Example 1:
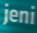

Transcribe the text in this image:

jeni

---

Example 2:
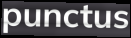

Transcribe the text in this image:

punctus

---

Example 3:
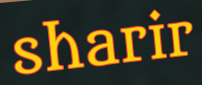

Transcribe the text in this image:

sharir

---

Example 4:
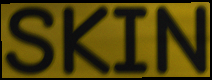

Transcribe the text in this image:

SKIN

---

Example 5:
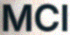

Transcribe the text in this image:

MCI